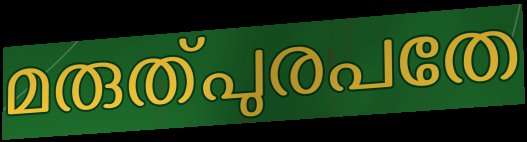
മരുത്പുരപതേ